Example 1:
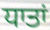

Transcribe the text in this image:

ਧਾਤਾਂ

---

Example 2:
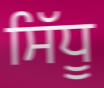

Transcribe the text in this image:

ਸਿੱਧੂ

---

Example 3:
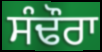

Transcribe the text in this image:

ਸੰਢੌਰਾ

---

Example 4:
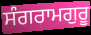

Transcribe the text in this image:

ਸੰਗਰਾਮਗੁਰੂ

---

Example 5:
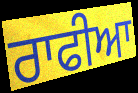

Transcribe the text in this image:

ਰਾਫੀਆ